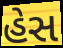
હેસ